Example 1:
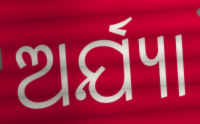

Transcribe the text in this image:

ଅର୍ଯ୍ୟା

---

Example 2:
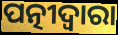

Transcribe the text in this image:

ପତ୍ନୀଦ୍ୱାରା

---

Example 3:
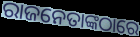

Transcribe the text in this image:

ରାଜନେତାଙ୍କଠାରେ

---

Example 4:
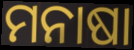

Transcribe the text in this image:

ମନାଷା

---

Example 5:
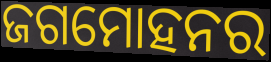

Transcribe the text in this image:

ଜଗମୋହନର